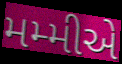
મમ્મીએ